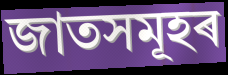
জাতসমূহৰ